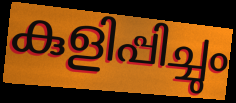
കുളിപ്പിച്ചും